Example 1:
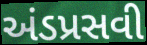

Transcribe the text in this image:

અંડપ્રસવી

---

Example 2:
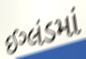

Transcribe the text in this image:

ઈગ્લંડમાં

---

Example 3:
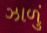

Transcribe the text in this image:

ઝાળું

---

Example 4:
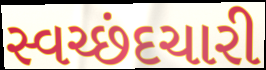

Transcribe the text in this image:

સ્વચ્છંદચારી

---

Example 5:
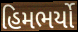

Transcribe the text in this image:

હિમભર્યો